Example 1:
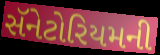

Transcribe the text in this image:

સૅનેટોરિયમની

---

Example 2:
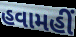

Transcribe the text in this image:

હવામહીં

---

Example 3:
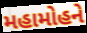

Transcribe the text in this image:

મહામોહને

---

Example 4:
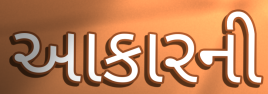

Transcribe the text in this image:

આકારની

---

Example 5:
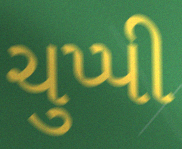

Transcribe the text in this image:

ચુપ્પી